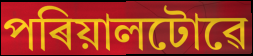
পৰিয়ালটোৱে